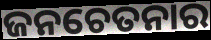
ଜନଚେତନାର